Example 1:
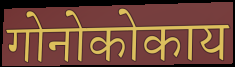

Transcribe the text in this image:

गोनोकोकाय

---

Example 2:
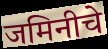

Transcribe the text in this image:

जमिनीचे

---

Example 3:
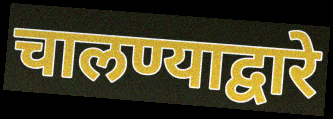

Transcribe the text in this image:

चालण्याद्वारे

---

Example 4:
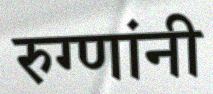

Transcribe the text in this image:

रुग्णांनी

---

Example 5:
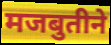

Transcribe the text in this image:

मजबुतीने